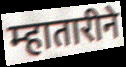
म्हातारीने